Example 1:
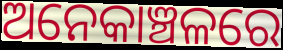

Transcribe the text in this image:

ଅନେକାଞ୍ଚଳରେ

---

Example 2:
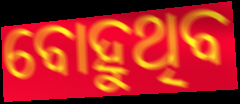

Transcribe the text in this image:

ବୋହୁଥିବ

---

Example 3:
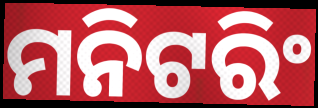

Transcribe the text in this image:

ମନିଟରିଂ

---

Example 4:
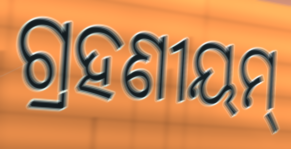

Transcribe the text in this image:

ଗ୍ରହଣୀୟମ୍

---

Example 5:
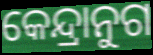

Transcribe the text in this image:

କେନ୍ଦ୍ରାନୁଗ